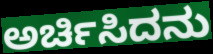
ಅರ್ಚಿಸಿದನು